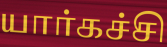
யார்கச்சி